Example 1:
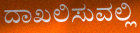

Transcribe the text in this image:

ದಾಖಲಿಸುವಲ್ಲಿ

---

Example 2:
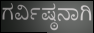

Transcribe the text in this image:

ಗರ್ವಿಷ್ಠನಾಗಿ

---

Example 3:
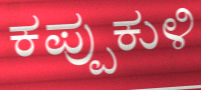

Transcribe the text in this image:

ಕಪ್ಪುಕುಳಿ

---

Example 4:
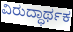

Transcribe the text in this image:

ವಿರುದ್ಧಾರ್ಥಕ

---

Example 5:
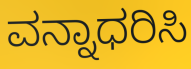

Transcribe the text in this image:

ವನ್ನಾಧರಿಸಿ